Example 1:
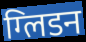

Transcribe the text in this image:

ग्लिडन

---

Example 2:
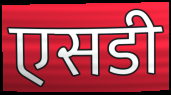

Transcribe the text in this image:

एसडी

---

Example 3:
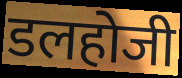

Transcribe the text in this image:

डलहोजी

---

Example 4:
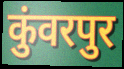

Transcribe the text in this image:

कुंवरपुर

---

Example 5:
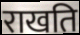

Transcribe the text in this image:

राखति